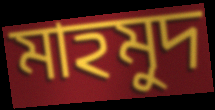
মাহমুদ